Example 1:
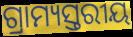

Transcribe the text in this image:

ଗ୍ରାମ୍ୟସ୍ତରୀୟ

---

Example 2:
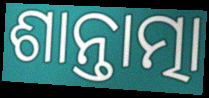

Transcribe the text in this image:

ଶାନ୍ତାତ୍ମା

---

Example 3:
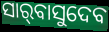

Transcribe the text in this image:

ସାର୍‌ବାସୁଦେବ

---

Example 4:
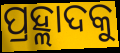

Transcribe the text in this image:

ପ୍ରହ୍ଲାଦକୁ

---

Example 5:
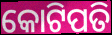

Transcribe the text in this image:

କୋଟିପତି